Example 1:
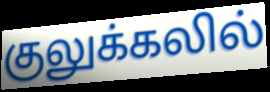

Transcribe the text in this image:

குலுக்கலில்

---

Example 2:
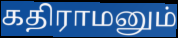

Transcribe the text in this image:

கதிராமனும்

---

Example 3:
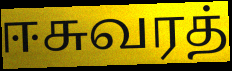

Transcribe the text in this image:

ஈசுவரத்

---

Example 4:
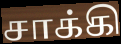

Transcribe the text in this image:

சாக்கி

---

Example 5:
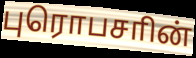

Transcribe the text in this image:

புரொபசரின்